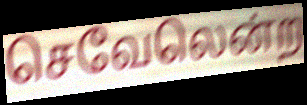
செவேலென்ற